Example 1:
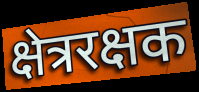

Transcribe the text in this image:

क्षेत्ररक्षक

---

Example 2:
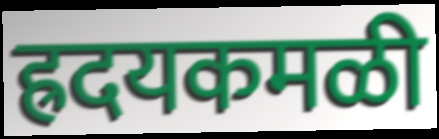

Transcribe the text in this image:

ह्रदयकमळी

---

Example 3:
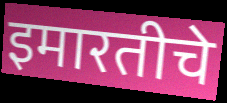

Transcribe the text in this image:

इमारतीचे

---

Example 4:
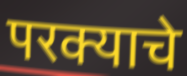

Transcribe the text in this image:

परक्याचे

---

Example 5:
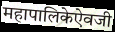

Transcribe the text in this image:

महापालिकेऐवजी